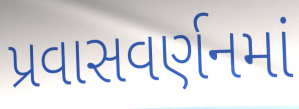
પ્રવાસવર્ણનમાં